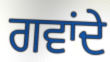
ਗਵਾਂਦੇ